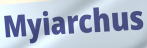
Myiarchus